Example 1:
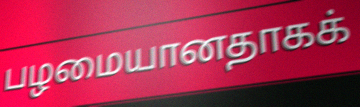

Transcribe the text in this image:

பழமையானதாகக்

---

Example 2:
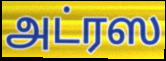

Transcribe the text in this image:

அட்ரஸ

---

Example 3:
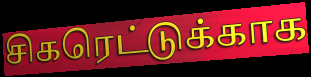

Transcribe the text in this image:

சிகரெட்டுக்காக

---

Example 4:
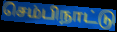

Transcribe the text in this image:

செம்பிநாட்டு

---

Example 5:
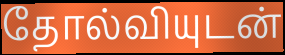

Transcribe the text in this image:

தோல்வியுடன்